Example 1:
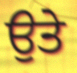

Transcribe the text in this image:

ਉਤੇ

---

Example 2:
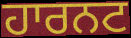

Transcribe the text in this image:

ਹਾਰਨਟ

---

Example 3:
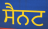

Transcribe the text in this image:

ਸੈਨਟ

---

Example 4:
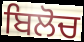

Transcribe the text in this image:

ਬਿਲੋਚ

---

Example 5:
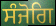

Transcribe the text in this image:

ਸੰਜੋਗਿ